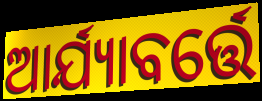
ଆର୍ଯ୍ୟାବର୍ତ୍ତେ